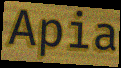
Apia